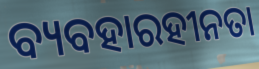
ବ୍ୟବହାରହୀନତା